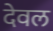
देवल